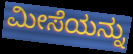
ಮೀಸೆಯನ್ನು